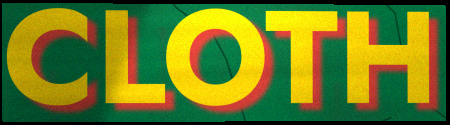
CLOTH